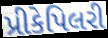
પ્રીકેપિલરી